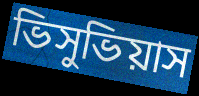
ভিসুভিয়াস